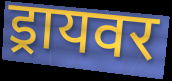
ड्रायवर